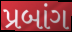
પ્રબાંગ